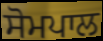
ਸੋਮਪਾਲ